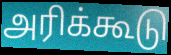
அரிக்கூடு